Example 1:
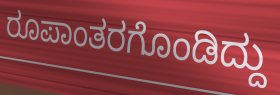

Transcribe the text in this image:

ರೂಪಾಂತರಗೊಂಡಿದ್ದು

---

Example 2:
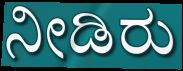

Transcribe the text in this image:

ನೀಡಿರು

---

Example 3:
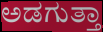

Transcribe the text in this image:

ಅಡಗುತ್ತಾ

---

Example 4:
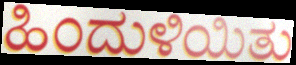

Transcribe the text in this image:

ಹಿಂದುಳಿಯಿತು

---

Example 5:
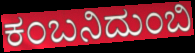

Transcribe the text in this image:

ಕಂಬನಿದುಂಬಿ